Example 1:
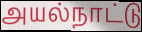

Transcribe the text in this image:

அயல்நாட்டு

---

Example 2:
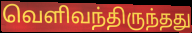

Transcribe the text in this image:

வெளிவந்திருந்தது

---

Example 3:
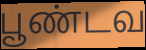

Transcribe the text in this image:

பூண்டவ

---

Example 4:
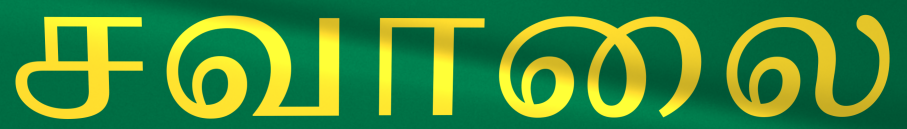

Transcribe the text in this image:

சவாலை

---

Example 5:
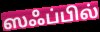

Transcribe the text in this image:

ஸஃப்பில்